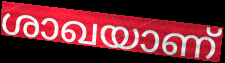
ശാഖയാണ്